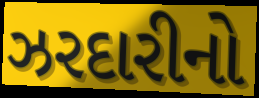
ઝરદારીનો